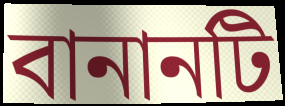
বানানটি